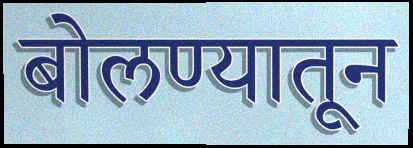
बोलण्यातून